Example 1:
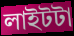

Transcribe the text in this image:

লাইটটা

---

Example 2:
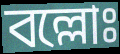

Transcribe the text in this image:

বল্লোঃ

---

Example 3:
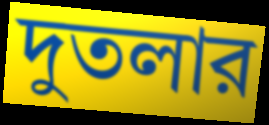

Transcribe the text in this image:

দুতলার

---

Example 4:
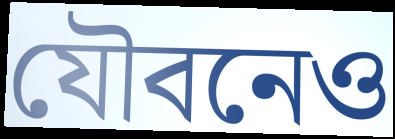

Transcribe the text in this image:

যৌবনেও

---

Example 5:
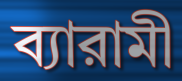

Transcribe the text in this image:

ব্যারামী